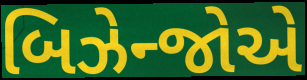
બિઝેન્જોએ